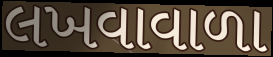
લખવાવાળા